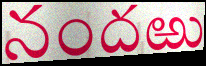
నందఱు